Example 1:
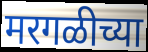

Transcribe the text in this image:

मरगळीच्या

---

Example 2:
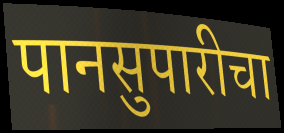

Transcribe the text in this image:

पानसुपारीचा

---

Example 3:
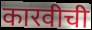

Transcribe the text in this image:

कारवीची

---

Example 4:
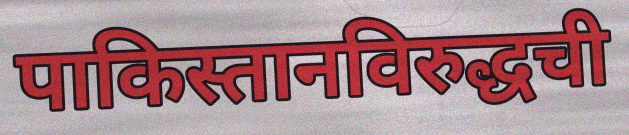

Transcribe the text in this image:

पाकिस्तानविरुद्धची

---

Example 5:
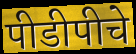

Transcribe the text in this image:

पीडीपीचे